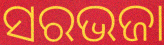
ସରଭଜା